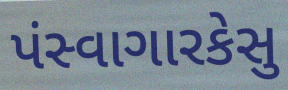
પંસ્વાગારકેસુ